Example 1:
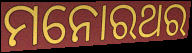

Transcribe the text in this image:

ମନୋରଥର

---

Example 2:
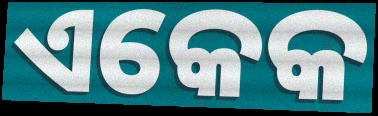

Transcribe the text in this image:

ଏକେକ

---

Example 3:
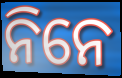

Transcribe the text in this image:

ନିନେ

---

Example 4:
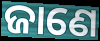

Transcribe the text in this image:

ଜାଣେ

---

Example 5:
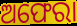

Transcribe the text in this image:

ଅଫେରା